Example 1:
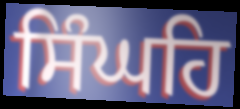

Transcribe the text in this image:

ਸਿੰਘਹਿ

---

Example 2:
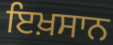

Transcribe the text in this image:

ਇਖ਼ਸਾਨ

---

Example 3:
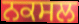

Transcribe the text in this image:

ਨਕਸਲ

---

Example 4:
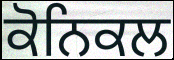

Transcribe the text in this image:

ਕੋਨਿਕਲ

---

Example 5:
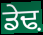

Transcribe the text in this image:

ਡੇਢ਼